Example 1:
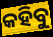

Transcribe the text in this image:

କହିବୁ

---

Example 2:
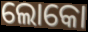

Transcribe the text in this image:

ଲୋକୋ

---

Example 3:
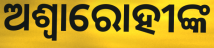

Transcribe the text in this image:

ଅଶ୍ୱାରୋହୀଙ୍କ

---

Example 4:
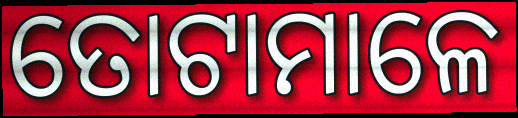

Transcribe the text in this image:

ତୋଟାମାଳେ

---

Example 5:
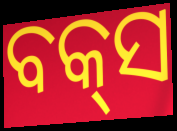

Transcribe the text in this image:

ବକ୍‌ସ